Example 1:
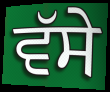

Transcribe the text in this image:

ਵੱਸੇ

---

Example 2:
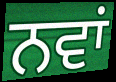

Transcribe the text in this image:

ਨਵਾਂ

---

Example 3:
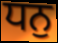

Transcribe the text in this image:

ਧਨੁ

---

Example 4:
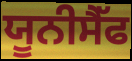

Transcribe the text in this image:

ਯੂਨੀਸੈੱਫ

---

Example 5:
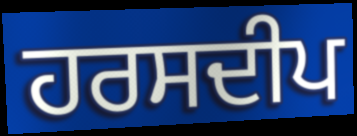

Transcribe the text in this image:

ਹਰਸਦੀਪ